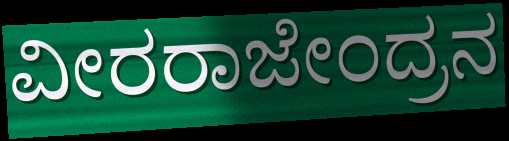
ವೀರರಾಜೇಂದ್ರನ